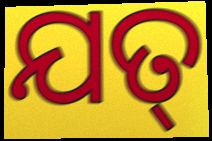
ଯତ୍